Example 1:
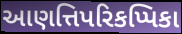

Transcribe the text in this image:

આણત્તિપરિકપ્પિકા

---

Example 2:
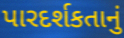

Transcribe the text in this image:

પારદર્શકતાનું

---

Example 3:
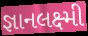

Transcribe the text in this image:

જ્ઞાનલક્ષ્મી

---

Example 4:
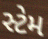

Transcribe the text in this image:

સ્ટેમ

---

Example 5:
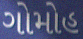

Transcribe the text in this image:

ગોમોહ